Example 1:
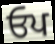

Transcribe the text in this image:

ਓਪ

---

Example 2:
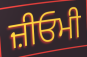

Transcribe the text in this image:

ਜ਼ੀਓਮੀ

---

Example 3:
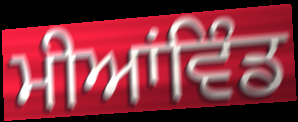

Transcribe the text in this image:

ਮੀਆਂਵਿੰਡ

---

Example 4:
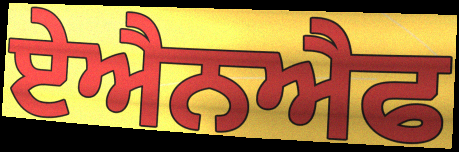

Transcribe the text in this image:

ਏਐਨਐਫ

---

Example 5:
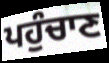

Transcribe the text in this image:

ਪਹੁੰਚਾਣ